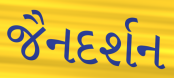
જૈનદર્શન